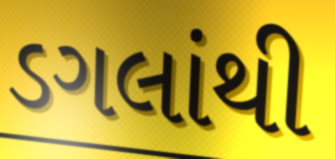
ડગલાંથી